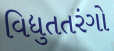
વિદ્યુતતરંગો